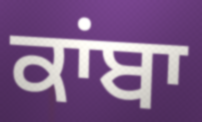
ਕਾਂਬਾ